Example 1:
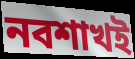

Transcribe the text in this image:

নবশাখই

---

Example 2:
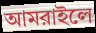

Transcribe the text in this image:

আমরাইলে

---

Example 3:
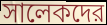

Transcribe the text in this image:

সালেকদের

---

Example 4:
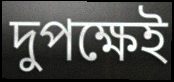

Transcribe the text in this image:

দুপক্ষেই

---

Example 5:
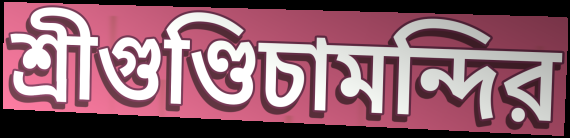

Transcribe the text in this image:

শ্রীগুণ্ডিচামন্দির